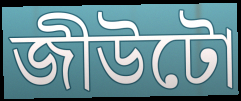
জীউটো